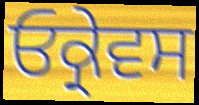
ਓਕ੍ਰੇਵਸ